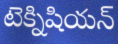
టెక్నిషియన్